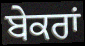
ਬੇਕਰਾਂ